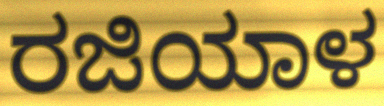
ರಜಿಯಾಳ